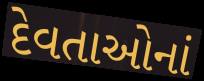
દેવતાઓનાં